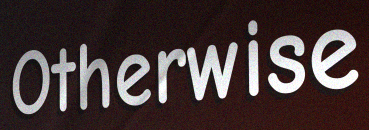
Otherwise